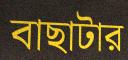
বাছাটার